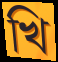
খি